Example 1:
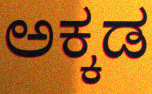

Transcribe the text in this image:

ಅಕ್ಕಡ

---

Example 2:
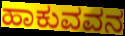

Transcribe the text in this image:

ಹಾಕುವವನ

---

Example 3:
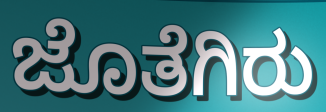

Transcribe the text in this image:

ಜೊತೆಗಿರು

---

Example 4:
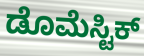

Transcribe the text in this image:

ಡೊಮೆಸ್ಟಿಕ್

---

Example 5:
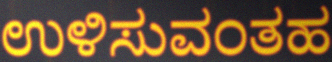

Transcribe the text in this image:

ಉಳಿಸುವಂತಹ